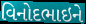
વિનોદભાઇને